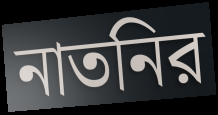
নাতনির